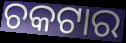
ଚକଟାର